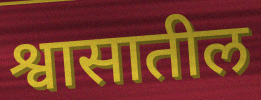
श्वासातील